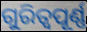
ଗୁରିତ୍ୱପୂର୍ଣ୍ଣ